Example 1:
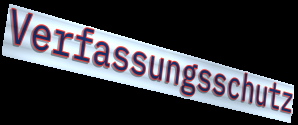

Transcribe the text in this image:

Verfassungsschutz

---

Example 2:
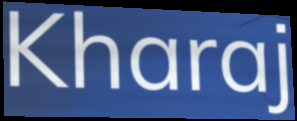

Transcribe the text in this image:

Kharaj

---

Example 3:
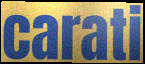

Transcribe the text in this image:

carati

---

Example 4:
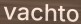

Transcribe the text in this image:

vachto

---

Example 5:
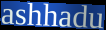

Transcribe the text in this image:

ashhadu